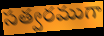
సత్వరముగా